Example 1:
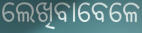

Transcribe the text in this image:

ଲେଖିବାବେଳେ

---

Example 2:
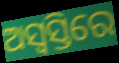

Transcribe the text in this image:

ଅସ୍ୱସ୍ତିରେ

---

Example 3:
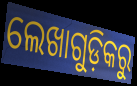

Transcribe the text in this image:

ଲେଖାଗୁଡ଼ିକରୁ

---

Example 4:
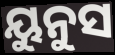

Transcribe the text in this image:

ୟୁନୁସ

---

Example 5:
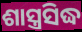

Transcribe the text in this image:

ଶାସ୍ତ୍ରସିଦ୍ଧ